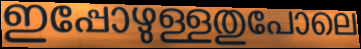
ഇപ്പോഴുള്ളതുപോലെ